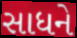
સાધને